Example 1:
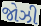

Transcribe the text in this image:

જોઝી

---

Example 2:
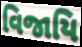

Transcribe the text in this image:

વિજાયિ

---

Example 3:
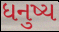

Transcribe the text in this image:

ધનુષ્ય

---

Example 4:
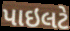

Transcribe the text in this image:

પાઇલટે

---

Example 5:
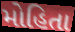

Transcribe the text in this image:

મોહિતા